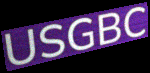
USGBC